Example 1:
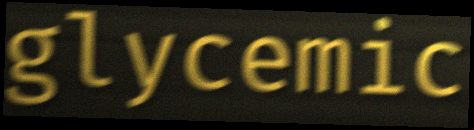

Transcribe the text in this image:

glycemic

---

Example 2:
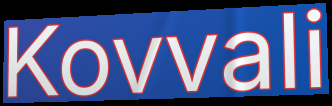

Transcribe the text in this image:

Kovvali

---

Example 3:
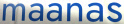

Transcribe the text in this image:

maanas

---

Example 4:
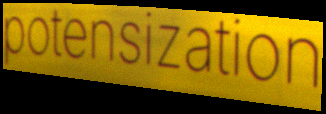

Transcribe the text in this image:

potensization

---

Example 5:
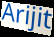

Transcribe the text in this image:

Arijit